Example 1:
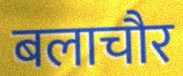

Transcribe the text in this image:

बलाचौर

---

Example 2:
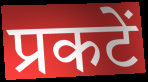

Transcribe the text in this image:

प्रकटें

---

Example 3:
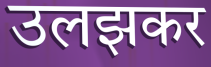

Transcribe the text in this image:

उलझकर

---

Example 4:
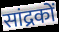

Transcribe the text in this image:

सांद्रकों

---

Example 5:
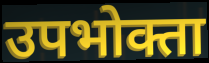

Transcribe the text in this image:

उपभोक्ता